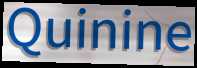
Quinine